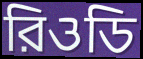
রিওডি